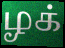
ழக்